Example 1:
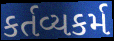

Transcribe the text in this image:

કર્તવ્યકર્મ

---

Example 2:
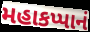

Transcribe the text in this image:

મહાકપ્પાનં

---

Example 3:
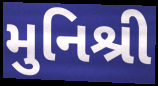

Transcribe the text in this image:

મુનિશ્રી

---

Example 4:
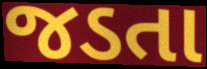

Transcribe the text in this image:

જડતા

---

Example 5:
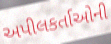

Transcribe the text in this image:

અપીલકર્તાઓની